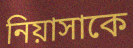
নিয়াসাকে